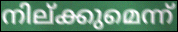
നില്ക്കുമെന്ന്